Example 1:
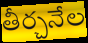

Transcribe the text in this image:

తీర్చనేల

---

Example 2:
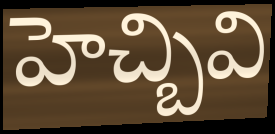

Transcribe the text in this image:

హెచ్బివి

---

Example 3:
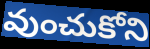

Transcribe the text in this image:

వుంచుకోని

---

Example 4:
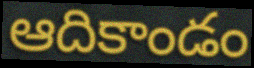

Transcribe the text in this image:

ఆదికాండం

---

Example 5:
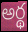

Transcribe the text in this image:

అర్థ